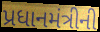
પ્રધાનમંત્રીની